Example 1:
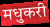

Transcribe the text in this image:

मधुकरी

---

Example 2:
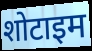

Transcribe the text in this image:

शोटाइम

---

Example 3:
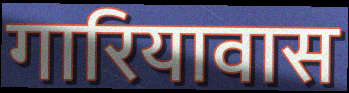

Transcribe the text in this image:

गारियावास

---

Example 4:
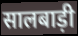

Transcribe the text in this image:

सालबाड़ी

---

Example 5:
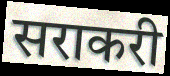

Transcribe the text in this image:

सराकरी